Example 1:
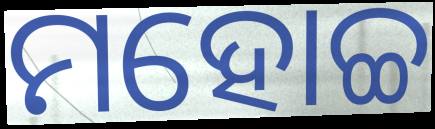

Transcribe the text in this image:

ମହୋଚ୍ଚ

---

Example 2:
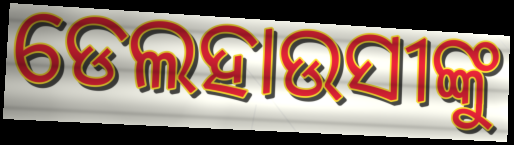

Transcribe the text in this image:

ଡେଲହାଉସୀଙ୍କୁ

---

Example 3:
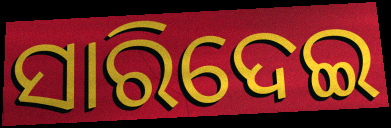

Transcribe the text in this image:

ସାରିଦେଇ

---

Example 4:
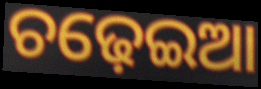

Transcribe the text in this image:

ଚଢ଼େଇଆ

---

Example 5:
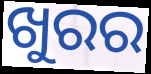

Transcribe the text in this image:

ଖୁରର